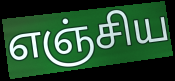
எஞ்சிய